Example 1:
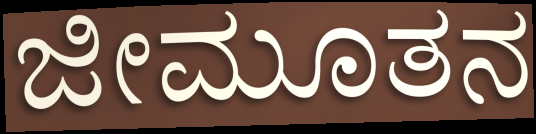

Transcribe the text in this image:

ಜೀಮೂತನ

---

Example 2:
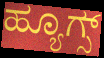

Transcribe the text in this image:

ಹ್ಯೂಗ್ಸ್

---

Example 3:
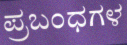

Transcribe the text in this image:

ಪ್ರಬಂಧಗಳ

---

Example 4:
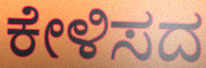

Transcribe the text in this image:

ಕೇಳಿಸದ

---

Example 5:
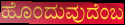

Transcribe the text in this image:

ಹೊಂದುವುದೆಂಬ